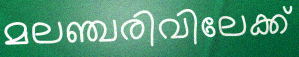
മലഞ്ചരിവിലേക്ക്